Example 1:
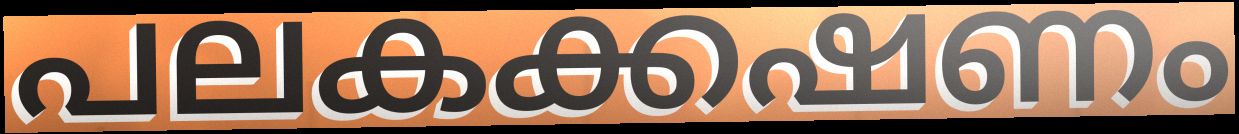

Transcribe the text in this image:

പലകക്കഷണം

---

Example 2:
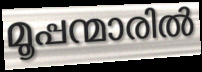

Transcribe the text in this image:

മൂപ്പന്മാരിൽ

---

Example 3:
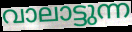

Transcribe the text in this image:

വാലാട്ടുന്ന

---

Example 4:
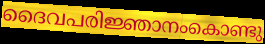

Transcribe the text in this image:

ദൈവപരിജ്ഞാനംകൊണ്ടു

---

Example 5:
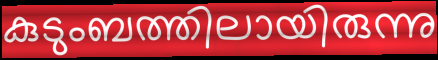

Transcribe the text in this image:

കുടുംബത്തിലായിരുന്നു